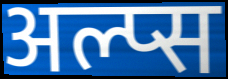
अल्प्स